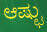
ಆಷ್ಟು